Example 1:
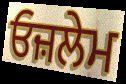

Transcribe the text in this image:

ਓਜ਼ਲੇਮ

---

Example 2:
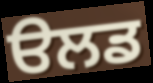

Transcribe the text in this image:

ੳਲਡ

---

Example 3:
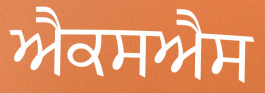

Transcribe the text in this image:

ਐਕਸਐਸ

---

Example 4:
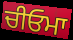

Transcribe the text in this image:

ਚੀਓਮਾ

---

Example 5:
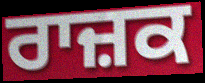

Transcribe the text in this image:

ਰਾਜ਼ਕ